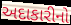
અદાકારીનો